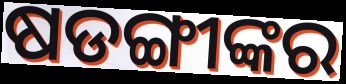
ଷଡଙ୍ଗୀଙ୍କର